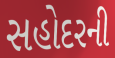
સહોદરની